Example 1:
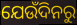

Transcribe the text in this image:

ଯେଉଁଦିନରୁ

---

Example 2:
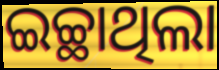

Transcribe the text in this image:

ଇଚ୍ଛାଥିଲା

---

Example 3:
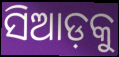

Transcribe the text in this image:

ସିଆଡ଼କୁ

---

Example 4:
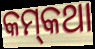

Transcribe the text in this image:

କମ୍‌କଥା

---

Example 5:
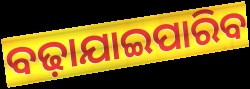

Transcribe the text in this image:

ବଢ଼ାଯାଇପାରିବ